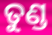
ତୁଣ୍ଡ